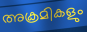
അക്രമികളും